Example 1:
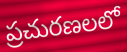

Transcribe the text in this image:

ప్రచురణలలో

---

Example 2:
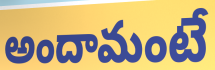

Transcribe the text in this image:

అందామంటే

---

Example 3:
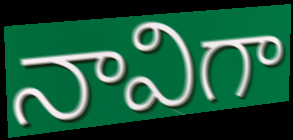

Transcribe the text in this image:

నావిగా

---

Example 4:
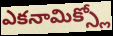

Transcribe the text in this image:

ఎకనామిక్స్లో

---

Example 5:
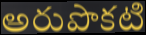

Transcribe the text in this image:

అరుపొకటి